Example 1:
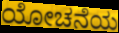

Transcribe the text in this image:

ಯೋಚನೆಯ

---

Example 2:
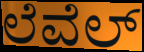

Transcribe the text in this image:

ಲೆವೆಲ್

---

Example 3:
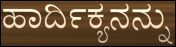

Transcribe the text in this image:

ಹಾರ್ದಿಕ್ಯನನ್ನು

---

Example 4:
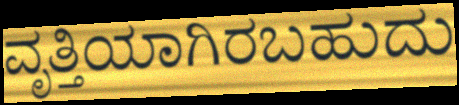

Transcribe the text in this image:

ವೃತ್ತಿಯಾಗಿರಬಹುದು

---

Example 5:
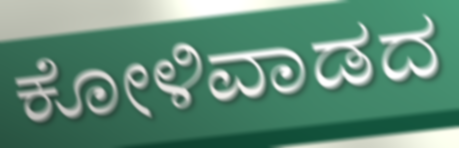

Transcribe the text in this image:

ಕೋಳಿವಾಡದ